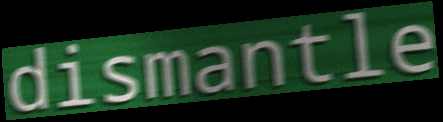
dismantle